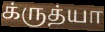
க்ருத்யா